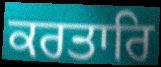
ਕਰਤਾਰਿ